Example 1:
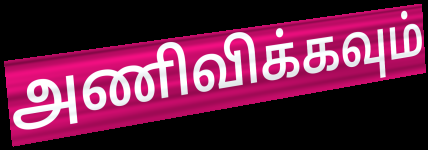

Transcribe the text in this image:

அணிவிக்கவும்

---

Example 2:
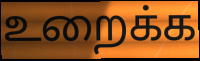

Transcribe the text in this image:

உறைக்க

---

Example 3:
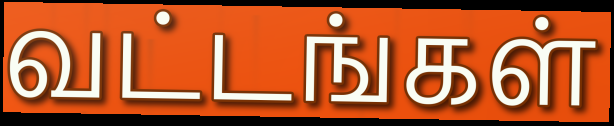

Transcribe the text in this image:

வட்டங்கள்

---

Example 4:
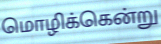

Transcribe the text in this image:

மொழிக்கென்று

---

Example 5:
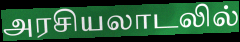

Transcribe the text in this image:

அரசியலாடலில்